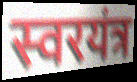
स्वरयंत्र